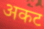
अकट